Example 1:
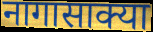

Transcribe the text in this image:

नागासाक्या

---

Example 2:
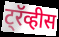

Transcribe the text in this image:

ट्रॅव्हीस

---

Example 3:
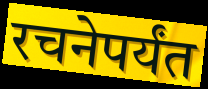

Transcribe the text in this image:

रचनेपर्यंत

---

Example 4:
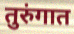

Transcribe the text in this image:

तुरुंगात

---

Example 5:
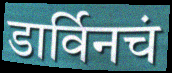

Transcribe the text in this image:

डार्विनचं